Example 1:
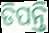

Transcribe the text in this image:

ଡିପନ୍ତି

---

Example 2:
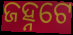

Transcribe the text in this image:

ଜହ୍ନଟେ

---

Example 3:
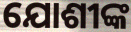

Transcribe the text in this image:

ଯୋଶୀଙ୍କ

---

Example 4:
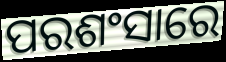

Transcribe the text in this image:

ପରଶଂସାରେ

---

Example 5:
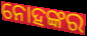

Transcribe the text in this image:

ନୋହଙ୍କର